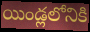
యిండ్లలోనికి